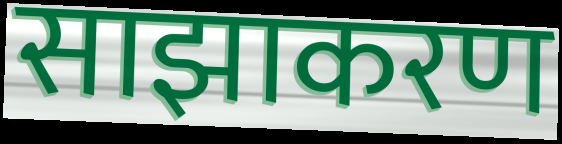
साझाकरण